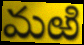
మఱి